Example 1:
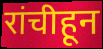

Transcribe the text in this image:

रांचीहून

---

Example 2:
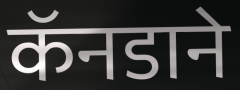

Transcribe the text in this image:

कॅनडाने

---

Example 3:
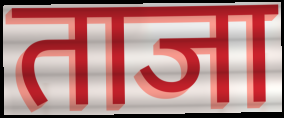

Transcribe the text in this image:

ताजा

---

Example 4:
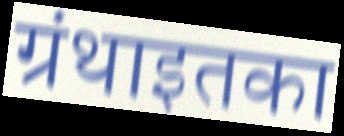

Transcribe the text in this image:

ग्रंथाइतका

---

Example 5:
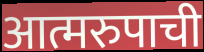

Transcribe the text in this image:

आत्मरुपाची